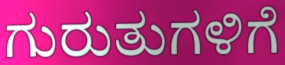
ಗುರುತುಗಳಿಗೆ